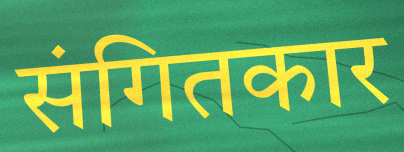
संगितकार